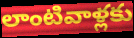
లాంటివాళ్లకు